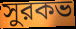
সুরকভ